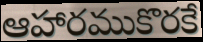
ఆహారముకొరకే